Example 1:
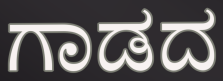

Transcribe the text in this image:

ಗಾಡದ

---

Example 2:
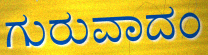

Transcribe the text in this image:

ಗುರುವಾದಂ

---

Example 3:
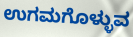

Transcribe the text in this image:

ಉಗಮಗೊಳ್ಳುವ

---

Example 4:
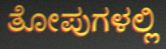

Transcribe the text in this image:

ತೋಪುಗಳಲ್ಲಿ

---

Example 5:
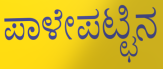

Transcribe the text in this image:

ಪಾಳೇಪಟ್ಟಿನ